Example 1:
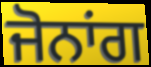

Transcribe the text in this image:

ਜੋਨਾਂਗ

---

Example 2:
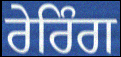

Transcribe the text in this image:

ਰੇਰਿੰਗ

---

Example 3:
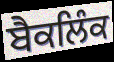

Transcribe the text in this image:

ਬੈਕਲਿੰਕ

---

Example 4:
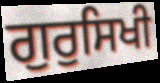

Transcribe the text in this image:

ਗੁਰੁਸਿਖੀ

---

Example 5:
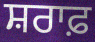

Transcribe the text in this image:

ਸ਼ਰਾਫ਼